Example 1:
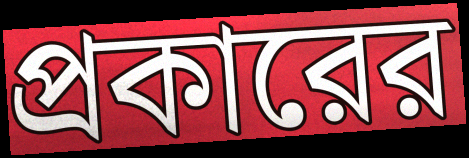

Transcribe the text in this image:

প্রকারের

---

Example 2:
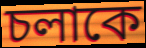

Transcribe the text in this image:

চলাকে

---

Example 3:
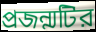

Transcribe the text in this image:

প্রজন্মটির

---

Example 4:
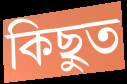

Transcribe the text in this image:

কিছুত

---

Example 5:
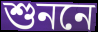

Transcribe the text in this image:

শুননে